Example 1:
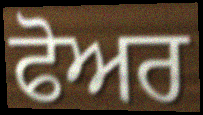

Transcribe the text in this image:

ਫੋਅਰ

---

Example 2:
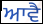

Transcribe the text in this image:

ਆਵੈ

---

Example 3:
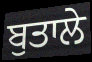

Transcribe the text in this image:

ਬੁਤਾਲੇ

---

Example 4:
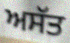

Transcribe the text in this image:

ਅਸੱਤ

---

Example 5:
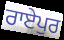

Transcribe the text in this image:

ਰਾਏਪੁਰ